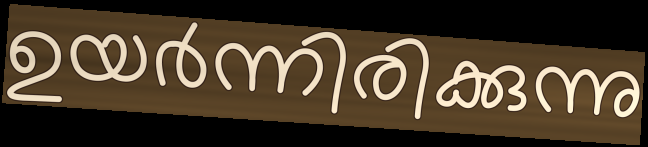
ഉയർന്നിരിക്കുന്നു